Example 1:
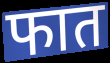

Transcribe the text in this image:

फात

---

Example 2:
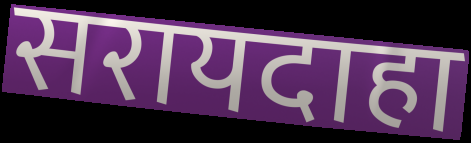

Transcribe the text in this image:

सरायदाहा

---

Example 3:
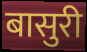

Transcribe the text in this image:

बासुरी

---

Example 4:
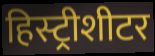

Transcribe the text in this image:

हिस्‍ट्रीशीटर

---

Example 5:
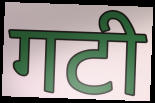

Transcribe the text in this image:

गटी